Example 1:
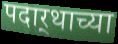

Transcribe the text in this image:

पदार्थाच्या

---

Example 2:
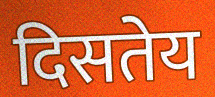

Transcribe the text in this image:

दिसतेय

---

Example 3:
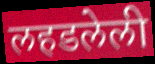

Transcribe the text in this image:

लहडलेली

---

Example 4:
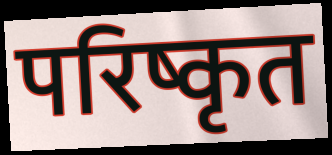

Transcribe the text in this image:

परिष्कृत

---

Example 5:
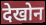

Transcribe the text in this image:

देखोन